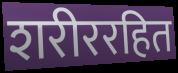
शरीररहित